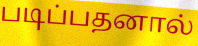
படிப்பதனால்